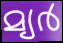
മ്യർ